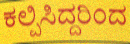
ಕಲ್ಪಿಸಿದ್ದರಿಂದ